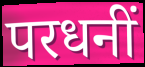
परधनीं